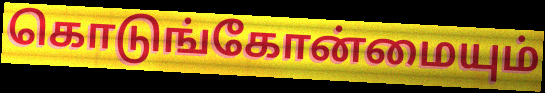
கொடுங்கோன்மையும்